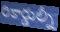
రికార్డుల్నీ